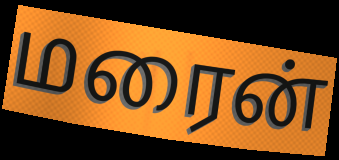
மரைன்